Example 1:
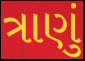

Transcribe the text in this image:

ત્રાણું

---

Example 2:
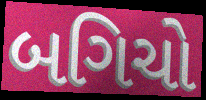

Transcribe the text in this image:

બગિચો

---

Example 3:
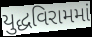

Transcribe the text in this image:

યુદ્ધવિરામમાં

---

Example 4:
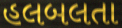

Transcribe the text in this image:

હલબલતા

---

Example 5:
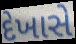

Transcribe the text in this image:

દેખાસે